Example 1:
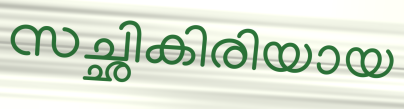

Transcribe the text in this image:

സച്ഛികിരിയായ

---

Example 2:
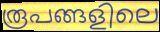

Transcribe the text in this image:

രൂപങ്ങളിലെ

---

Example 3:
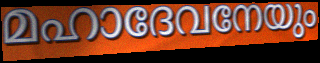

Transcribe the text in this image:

മഹാദേവനേയും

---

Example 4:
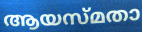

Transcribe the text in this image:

ആയസ്മതാ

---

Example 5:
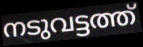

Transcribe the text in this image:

നടുവട്ടത്ത്